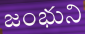
జంభుని